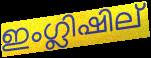
ഇംഗ്ലിഷില്